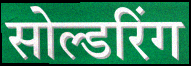
सोल्डरिंग